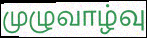
முழுவாழ்வு